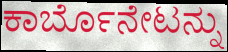
ಕಾರ್ಬೊನೇಟನ್ನು